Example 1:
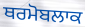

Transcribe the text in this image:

ਥਰਮੋਬਲਾਕ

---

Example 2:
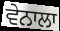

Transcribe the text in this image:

ਵੇਨਾਲਾ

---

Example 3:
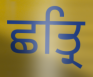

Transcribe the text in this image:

ਛਤ੍ਰਿ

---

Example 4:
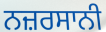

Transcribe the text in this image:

ਨਜ਼ਰਸਾਨੀ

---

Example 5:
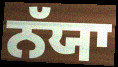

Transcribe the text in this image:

ਨੱਯਾ